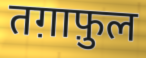
तग़ाफ़ुल